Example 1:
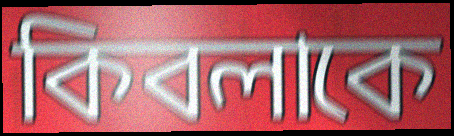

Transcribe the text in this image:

কিবলাকে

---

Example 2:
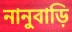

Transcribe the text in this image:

নানুবাড়ি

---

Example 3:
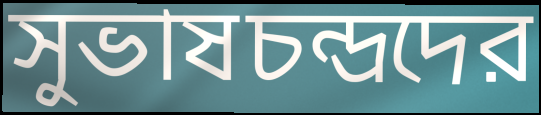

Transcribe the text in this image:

সুভাষচন্দ্রদের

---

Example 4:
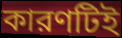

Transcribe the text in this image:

কারণটিই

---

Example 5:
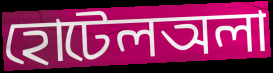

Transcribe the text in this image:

হোটেলঅলা